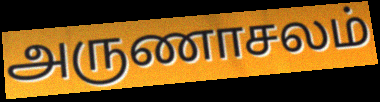
அருணாசலம்